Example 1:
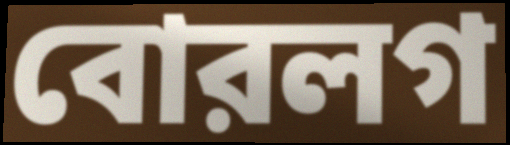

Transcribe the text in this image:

বোরলগ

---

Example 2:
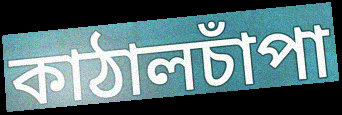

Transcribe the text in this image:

কাঠালচাঁপা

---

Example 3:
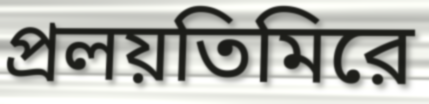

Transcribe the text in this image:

প্রলয়তিমিরে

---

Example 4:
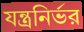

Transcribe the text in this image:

যন্ত্রনির্ভর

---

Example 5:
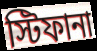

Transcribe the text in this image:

স্টিফানা